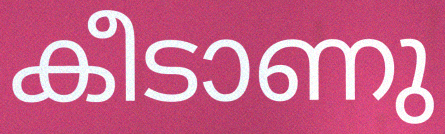
കീടാണു